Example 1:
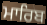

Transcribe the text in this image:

ਮਾਰਿਬ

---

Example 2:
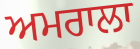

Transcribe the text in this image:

ਅਮਰਾਲਾ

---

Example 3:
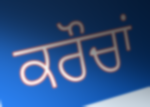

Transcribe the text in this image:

ਕਰੌਚਾਂ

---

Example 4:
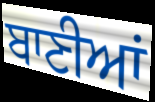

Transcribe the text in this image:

ਬਾਣੀਆਂ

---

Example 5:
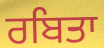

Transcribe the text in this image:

ਰਬਿਤਾ